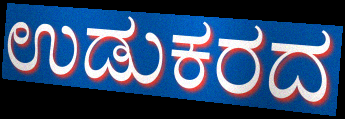
ಉಡುಕರದ